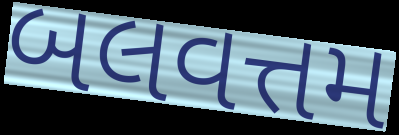
બલવત્તમ